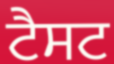
ਟੈਸਟ